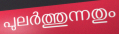
പുലർത്തുന്നതും